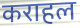
कराहल